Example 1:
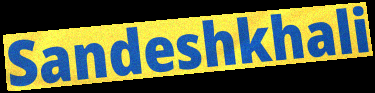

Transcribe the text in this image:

Sandeshkhali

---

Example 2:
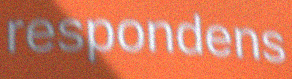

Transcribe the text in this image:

respondens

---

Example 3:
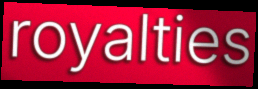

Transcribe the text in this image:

royalties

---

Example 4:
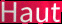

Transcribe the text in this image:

Haut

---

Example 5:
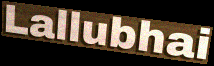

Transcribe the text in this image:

Lallubhai